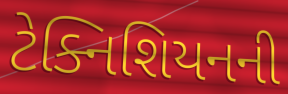
ટેક્નિશિયનની